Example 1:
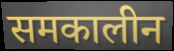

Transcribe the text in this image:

समकालीन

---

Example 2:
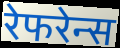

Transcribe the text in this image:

रेफरेन्स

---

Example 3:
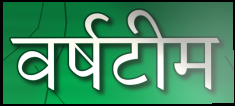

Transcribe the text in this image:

वर्षटीम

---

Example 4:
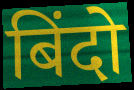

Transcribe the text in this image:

बिंदो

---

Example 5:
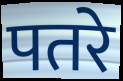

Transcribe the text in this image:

पतरे